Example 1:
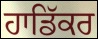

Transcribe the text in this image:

ਹਾਡਿੱਕਰ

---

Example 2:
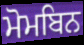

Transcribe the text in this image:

ਮੋਮਬਿਨ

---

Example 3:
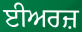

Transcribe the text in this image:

ਈਅਰਜ਼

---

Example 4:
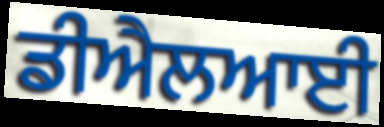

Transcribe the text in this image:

ਡੀਐਲਆਈ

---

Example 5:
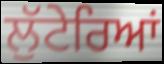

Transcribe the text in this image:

ਲੁੱਟੇਰਿਆਂ